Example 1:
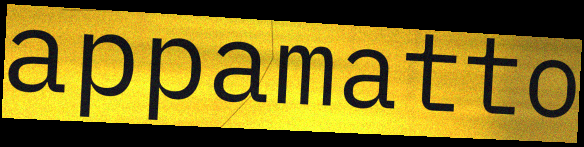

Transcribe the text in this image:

appamatto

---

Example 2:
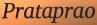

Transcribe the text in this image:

Prataprao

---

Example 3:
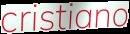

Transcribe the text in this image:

cristiano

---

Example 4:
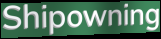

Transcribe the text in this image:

Shipowning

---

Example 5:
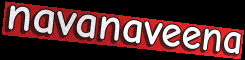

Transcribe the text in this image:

navanaveena